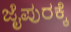
ಜೈಪುರಕ್ಕೆ